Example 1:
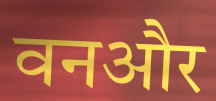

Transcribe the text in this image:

वनऔर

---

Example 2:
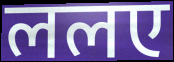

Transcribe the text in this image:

ललए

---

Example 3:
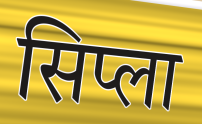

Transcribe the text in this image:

सिप्ला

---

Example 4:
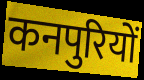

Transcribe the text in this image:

कनपुरियों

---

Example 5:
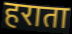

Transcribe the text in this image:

हराता